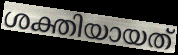
ശക്തിയായത്